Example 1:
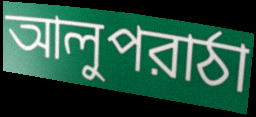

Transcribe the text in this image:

আলুপরাঠা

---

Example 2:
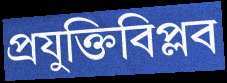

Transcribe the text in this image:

প্রযুক্তিবিপ্লব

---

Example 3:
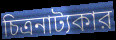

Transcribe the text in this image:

চিত্রনাট্যকার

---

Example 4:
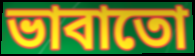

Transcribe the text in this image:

ভাবাতো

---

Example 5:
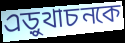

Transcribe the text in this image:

এড়ুথাচনকে